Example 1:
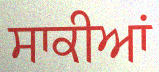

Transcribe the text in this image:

ਸਾਕੀਆਂ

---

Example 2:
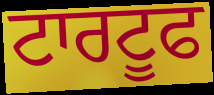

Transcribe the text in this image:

ਟਾਰਟੂਫ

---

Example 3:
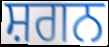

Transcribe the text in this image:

ਸ਼ਗਨ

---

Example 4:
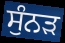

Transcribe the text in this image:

ਸੁੰਨੜ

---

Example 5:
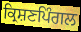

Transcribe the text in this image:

ਕ੍ਰਿਸ਼ਣਪਿੰਗਲ